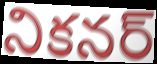
నికనర్